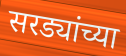
सरड्यांच्या